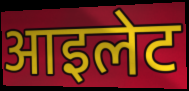
आइलेट